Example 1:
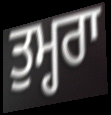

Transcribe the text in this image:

ਤੁਮ੍ਹਰਾ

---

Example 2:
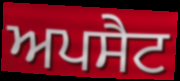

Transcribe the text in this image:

ਅਪਸੈਟ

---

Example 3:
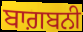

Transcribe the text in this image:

ਬਾਗ਼ਬਨੀ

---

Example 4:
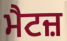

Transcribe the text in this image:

ਮੈਟਜ਼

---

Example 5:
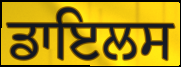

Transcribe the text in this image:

ਡਾਇਲਸ